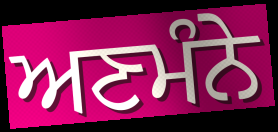
ਅਣਮੰਨੇ